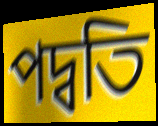
পদ্বতি